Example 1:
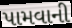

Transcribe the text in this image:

પામવાની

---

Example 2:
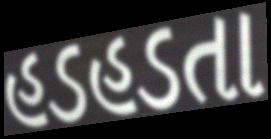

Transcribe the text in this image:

હડહડતા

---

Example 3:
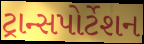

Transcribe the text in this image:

ટ્રાન્સપોર્ટેશન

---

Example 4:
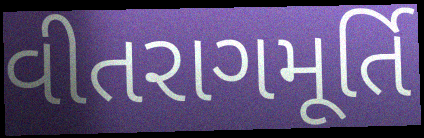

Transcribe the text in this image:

વીતરાગમૂર્તિ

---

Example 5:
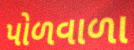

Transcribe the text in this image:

પોળવાળા